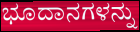
ಭೂದಾನಗಳನ್ನು